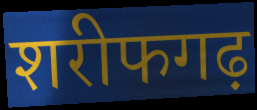
शरीफगढ़